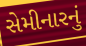
સેમીનારનું